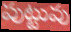
పుట్టువు